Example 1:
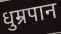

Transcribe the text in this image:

धुम्रपान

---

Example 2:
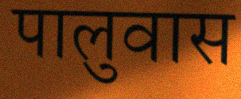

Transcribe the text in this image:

पालुवास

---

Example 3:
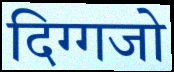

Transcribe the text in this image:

दिग्गजो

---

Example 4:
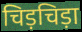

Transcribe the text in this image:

चिड़चिड़ा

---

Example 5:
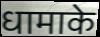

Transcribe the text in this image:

धामाके